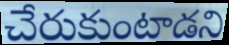
చేరుకుంటాడని